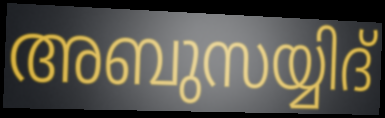
അബുസയ്യിദ്